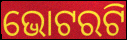
ଭୋଟରଟି